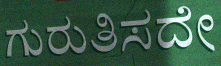
ಗುರುತಿಸದೇ